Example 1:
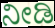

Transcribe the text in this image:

ನೀಡಿ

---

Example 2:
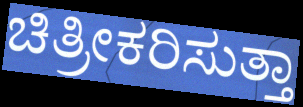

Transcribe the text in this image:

ಚಿತ್ರೀಕರಿಸುತ್ತಾ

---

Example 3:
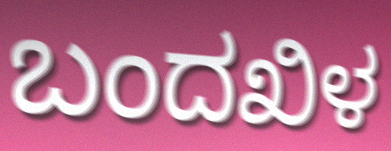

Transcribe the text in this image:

ಬಂದಖಿಳ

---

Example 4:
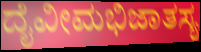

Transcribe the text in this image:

ದೈವೀಮಭಿಜಾತಸ್ಯ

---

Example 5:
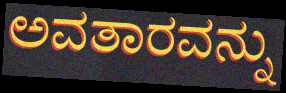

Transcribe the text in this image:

ಅವತಾರವನ್ನು